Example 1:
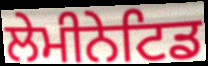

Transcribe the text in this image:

ਲੇਮੀਨੇਟਿਡ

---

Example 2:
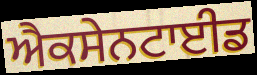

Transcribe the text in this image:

ਐਕਸੇਨਟਾਈਡ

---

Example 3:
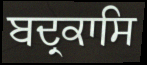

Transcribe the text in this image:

ਬਦ੍ਰਕਾਸਿ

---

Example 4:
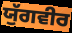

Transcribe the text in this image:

ਯੁੱਗਵੀਰ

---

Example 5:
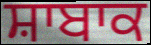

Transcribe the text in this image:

ਸ਼ਾਬਾਕ